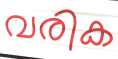
വരിക